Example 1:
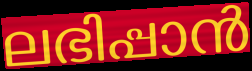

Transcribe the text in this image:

ലഭിപ്പാൻ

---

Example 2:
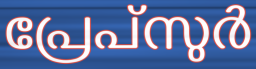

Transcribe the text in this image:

പ്രേപ്സുർ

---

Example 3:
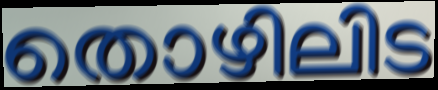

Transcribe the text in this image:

തൊഴിലിട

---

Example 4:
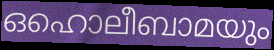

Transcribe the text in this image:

ഒഹൊലീബാമയും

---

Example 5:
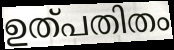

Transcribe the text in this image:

ഉത്പതിതം